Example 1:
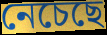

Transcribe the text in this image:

নেচেছে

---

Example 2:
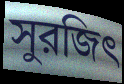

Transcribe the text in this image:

সুরজিৎ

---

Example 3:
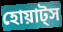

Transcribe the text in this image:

হোয়াট্স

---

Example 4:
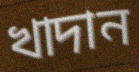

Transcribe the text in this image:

খাদান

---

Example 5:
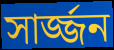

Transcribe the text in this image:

সার্জ্জন